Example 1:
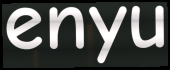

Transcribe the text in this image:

enyu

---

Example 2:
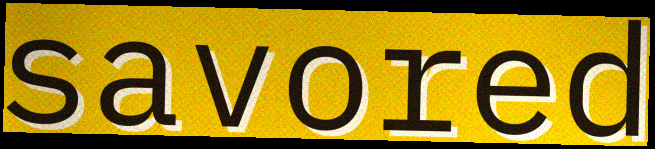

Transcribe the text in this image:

savored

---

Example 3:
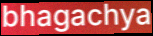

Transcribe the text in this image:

bhagachya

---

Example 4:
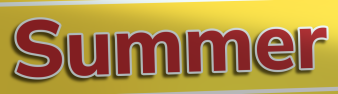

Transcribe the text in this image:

Summer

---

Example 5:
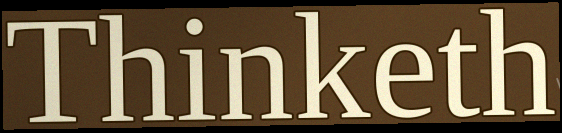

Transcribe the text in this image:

Thinketh